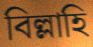
বিল্লাহি